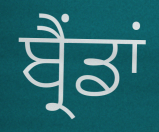
ਬ੍ਰੈਂਡਾਂ